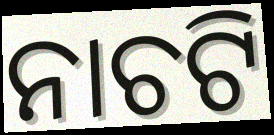
ନାଚଟି